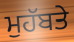
ਮੁਹੱਬਤੇ